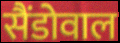
सैंडोवाल